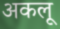
अकलू